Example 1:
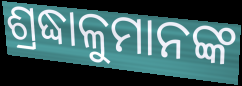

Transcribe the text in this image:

ଶ୍ରଦ୍ଧାଳୁମାନଙ୍କ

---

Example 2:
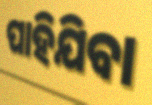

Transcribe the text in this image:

ପାହିଯିବା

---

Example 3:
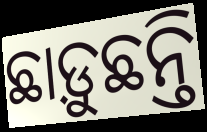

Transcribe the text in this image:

ଛାଡ଼ୁଛନ୍ତି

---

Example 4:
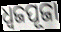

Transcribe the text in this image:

ଧ୍ୱଜପୂଜା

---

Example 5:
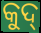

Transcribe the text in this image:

କୁଦ୍